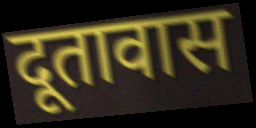
दूतावास